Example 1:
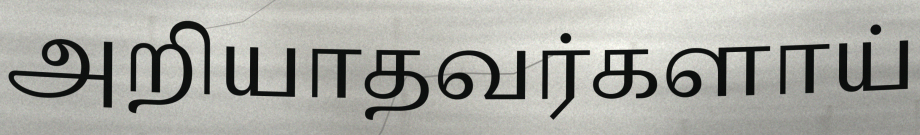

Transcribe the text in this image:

அறியாதவர்களாய்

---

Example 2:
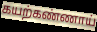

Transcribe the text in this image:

கயற்கண்ணாய்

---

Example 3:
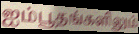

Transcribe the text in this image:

ஐம்பூதங்களிலும்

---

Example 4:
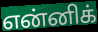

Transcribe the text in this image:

என்னிக்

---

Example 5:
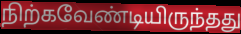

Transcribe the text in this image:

நிற்கவேண்டியிருந்தது